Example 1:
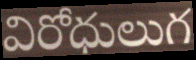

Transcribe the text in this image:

విరోధులుగ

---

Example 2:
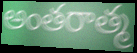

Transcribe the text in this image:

అంతరాత్మ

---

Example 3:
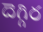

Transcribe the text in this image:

దెగ్గిర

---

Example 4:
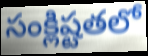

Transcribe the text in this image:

సంక్లిష్టతలో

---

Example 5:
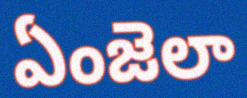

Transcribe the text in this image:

ఏంజెలా